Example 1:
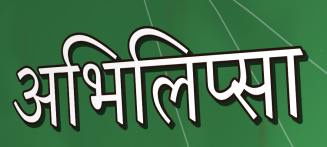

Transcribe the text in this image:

अभिलिप्सा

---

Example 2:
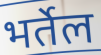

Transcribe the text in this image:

भर्तेल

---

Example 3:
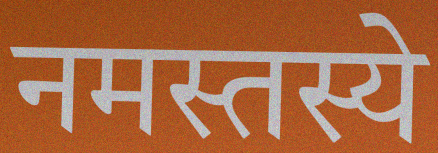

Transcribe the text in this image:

नमस्तस्ये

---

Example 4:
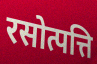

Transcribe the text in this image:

रसोत्पत्ति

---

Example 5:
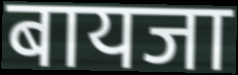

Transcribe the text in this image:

बायजा